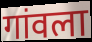
गांवला